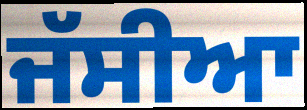
ਜੱਸੀਆ